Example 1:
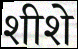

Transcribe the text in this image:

शीशे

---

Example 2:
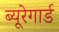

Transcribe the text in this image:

ब्यूरेगार्ड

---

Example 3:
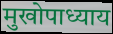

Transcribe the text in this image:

मुखोपाध्‍याय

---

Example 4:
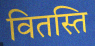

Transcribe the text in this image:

वितस्ति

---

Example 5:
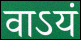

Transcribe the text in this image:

वाऽयं